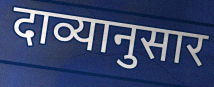
दाव्यानुसार